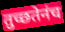
तुच्छतेनंच